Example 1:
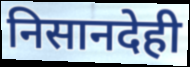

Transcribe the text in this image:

निसानदेही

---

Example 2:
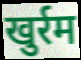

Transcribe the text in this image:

खुर्रम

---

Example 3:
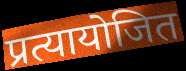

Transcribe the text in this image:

प्रत्यायोजित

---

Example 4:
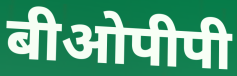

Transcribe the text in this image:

बीओपीपी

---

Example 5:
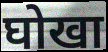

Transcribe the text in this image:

घोखा